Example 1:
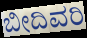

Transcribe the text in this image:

ಬೀದಿವರಿ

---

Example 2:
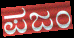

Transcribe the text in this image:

ಪಜಂ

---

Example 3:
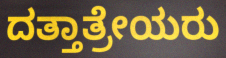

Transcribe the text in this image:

ದತ್ತಾತ್ರೇಯರು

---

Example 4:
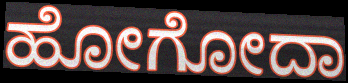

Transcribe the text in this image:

ಹೋಗೋದಾ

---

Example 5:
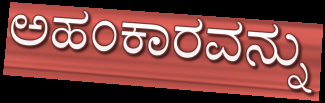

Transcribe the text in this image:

ಅಹಂಕಾರವನ್ನು